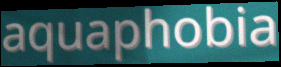
aquaphobia